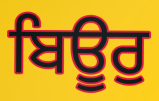
ਬਿਊਰੁ